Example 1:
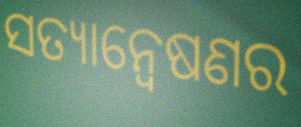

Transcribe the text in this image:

ସତ୍ୟାନ୍ୱେଷଣର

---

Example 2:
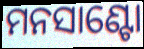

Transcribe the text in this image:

ମନସାଣ୍ଟୋ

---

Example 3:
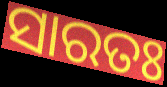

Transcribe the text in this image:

ସାରତଃ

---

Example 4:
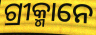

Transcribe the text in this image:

ଗ୍ରୀକ୍ମାନେ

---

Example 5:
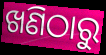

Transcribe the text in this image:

ଖଣିଠାରୁ